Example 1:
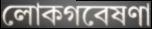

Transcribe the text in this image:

লোকগবেষণা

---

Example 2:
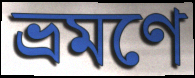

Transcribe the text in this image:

ভ্রমণে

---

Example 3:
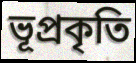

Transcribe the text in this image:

ভূপ্রকৃতি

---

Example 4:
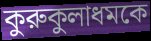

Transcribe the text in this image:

কুরুকুলাধমকে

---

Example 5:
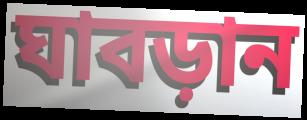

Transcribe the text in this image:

ঘাবড়ান